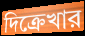
দিক্রেখার